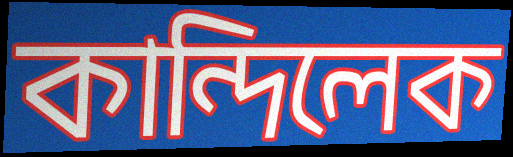
কান্দিলেক